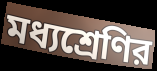
মধ্যশ্রেণির